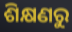
ଶିକ୍ଷଣରୁ